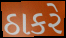
ઠાકરે